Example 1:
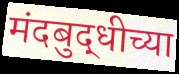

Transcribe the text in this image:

मंदबुद्धीच्या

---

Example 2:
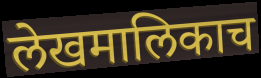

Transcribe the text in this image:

लेखमालिकाच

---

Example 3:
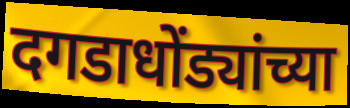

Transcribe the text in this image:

दगडाधोंड्यांच्या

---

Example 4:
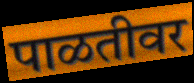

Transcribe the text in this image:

पाळतीवर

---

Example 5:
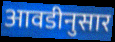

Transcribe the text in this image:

आवडीनुसार